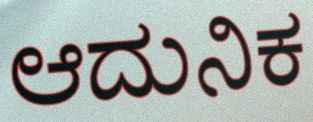
ಆದುನಿಕ